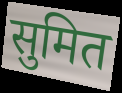
सुमित